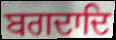
ਬਗਦਾਦਿ